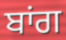
ਬਾਂਗ